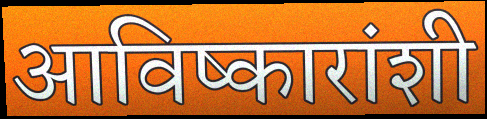
आविष्कारांशी